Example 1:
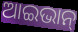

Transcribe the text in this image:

ଆଇଭାନ୍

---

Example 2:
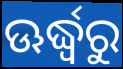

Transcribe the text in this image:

ଊର୍ଦ୍ଧ୍ଵରୁ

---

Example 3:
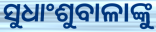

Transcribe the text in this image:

ସୁଧାଂଶୁବାଳାଙ୍କୁ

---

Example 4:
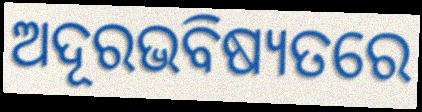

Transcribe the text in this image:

ଅଦୂରଭବିଷ୍ୟତରେ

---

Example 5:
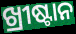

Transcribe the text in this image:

ଖ୍ରୀଷ୍ଟାନ